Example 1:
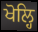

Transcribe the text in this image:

ਖੋਲ੍ਹਿ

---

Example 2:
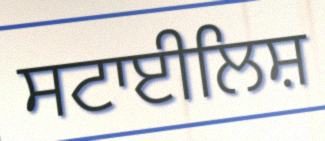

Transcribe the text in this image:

ਸਟਾਈਲਿਸ਼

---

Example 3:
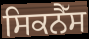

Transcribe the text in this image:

ਸਿਕਨੈੱਸ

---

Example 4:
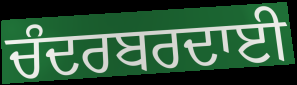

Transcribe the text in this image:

ਚੰਦਰਬਰਦਾਈ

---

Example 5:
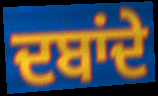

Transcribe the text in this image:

ਦਬਾਂਦੇ